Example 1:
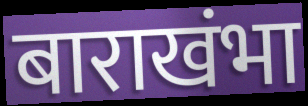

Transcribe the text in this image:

बाराखंभा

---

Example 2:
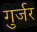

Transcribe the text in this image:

गुर्जर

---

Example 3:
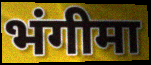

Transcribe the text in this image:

भंगीमा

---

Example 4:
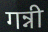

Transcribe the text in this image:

गन्नी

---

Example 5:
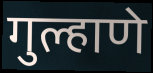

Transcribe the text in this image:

गुल्हाणे